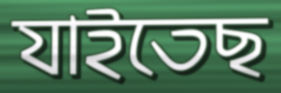
যাইতেছ